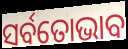
ସର୍ବତୋଭାବ